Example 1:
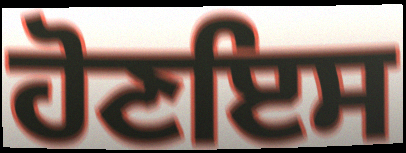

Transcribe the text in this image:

ਹੋਣਇਸ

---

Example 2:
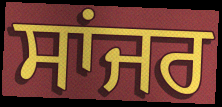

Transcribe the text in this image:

ਸਾਂਜਰ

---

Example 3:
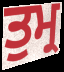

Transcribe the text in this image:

ਤੁਮ੍ਰ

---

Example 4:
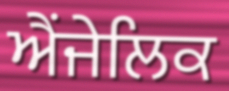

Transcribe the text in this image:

ਐਂਜੇਲਿਕ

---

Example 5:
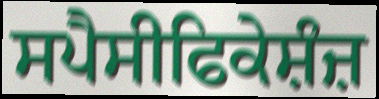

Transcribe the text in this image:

ਸਪੈਸੀਫਿਕੇਸ਼ੰਜ਼